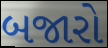
બજારો